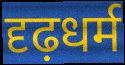
दृढ़धर्म